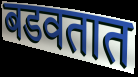
बडवतात